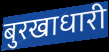
बुरखाधारी